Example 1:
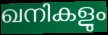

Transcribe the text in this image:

ഖനികളും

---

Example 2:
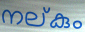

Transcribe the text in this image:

നല്കും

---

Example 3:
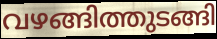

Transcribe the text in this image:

വഴങ്ങിത്തുടങ്ങി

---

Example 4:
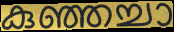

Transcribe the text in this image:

കുഞ്ഞച്ചാ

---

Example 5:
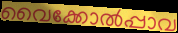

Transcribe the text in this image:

വൈക്കോൽപ്പാവ